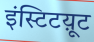
इंस्टिटय़ूट